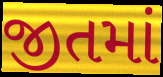
જીતમાં